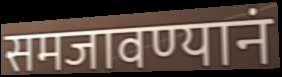
समजावण्यानं